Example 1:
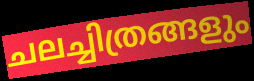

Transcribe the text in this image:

ചലച്ചിത്രങ്ങളും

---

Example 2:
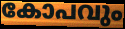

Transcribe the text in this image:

കോപവും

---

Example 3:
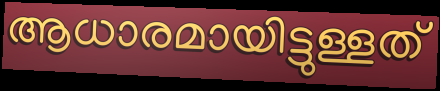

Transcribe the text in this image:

ആധാരമായിട്ടുള്ളത്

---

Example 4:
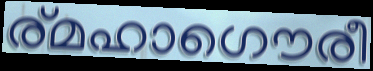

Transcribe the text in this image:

ര്മഹാഗൌരീ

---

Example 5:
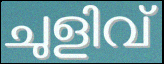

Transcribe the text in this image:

ചുളിവ്